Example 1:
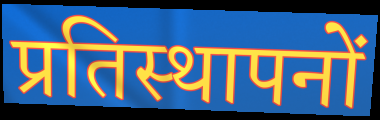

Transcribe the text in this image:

प्रतिस्थापनों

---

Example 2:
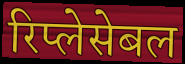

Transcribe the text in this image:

रिप्लेसेबल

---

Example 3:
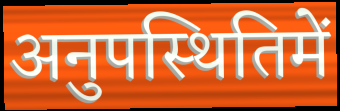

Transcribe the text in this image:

अनुपस्थितिमें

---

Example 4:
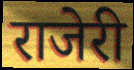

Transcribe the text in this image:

राजेरी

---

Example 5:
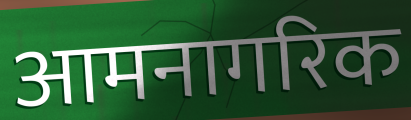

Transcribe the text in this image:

आमनागरिक